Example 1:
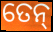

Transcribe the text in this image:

ତେନ୍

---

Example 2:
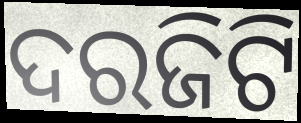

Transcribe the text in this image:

ଦରଜିଟି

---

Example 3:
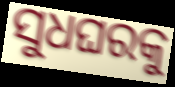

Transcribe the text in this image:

ସୁଧଘରକୁ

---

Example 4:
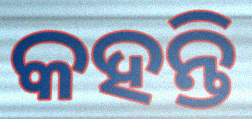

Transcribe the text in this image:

କହନ୍ତି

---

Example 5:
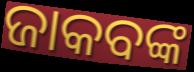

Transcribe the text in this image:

ଜାକବଙ୍କ